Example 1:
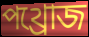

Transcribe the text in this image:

পথ্রোজ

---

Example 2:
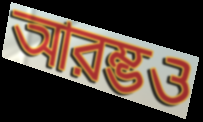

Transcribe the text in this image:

আরম্ভও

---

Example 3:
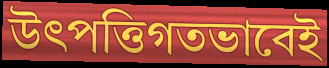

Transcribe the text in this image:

উৎপত্তিগতভাবেই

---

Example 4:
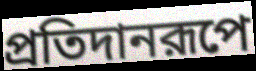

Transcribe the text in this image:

প্রতিদানরূপে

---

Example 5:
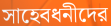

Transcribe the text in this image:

সাহেবধনীদের